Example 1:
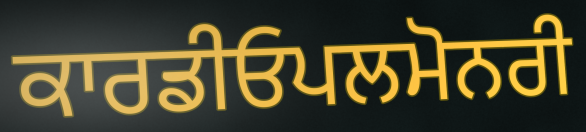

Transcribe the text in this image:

ਕਾਰਡੀਓਪਲਮੋਨਰੀ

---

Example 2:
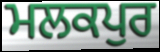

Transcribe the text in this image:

ਮਲਕਪੁਰ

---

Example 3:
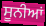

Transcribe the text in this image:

ਸੂਨੀਆਂ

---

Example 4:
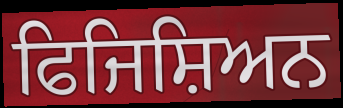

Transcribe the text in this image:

ਫਿਜਿਸ਼ਿਅਨ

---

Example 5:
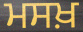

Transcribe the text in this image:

ਮਸਖ਼